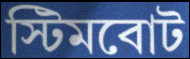
স্টিমবোট